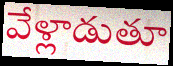
వేళ్లాడుతూ